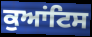
ਕੁਆਂਟਿਸ